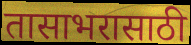
तासाभरासाठी